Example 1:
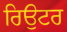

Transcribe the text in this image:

ਰਿਉਟਰ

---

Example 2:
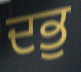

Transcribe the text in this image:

ਦਭੁ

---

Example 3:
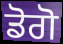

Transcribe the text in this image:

ਡੋਗੋ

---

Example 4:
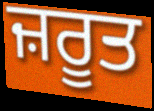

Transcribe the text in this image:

ਜ਼ਰੂਤ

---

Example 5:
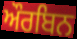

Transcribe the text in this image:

ਔਰਬਿਨ